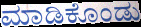
ಮಾಡಿಕೊಂಡು